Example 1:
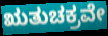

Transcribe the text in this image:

ಋತುಚಕ್ರವೇ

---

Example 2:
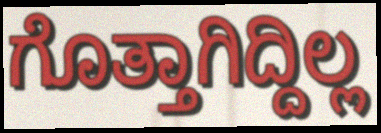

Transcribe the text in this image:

ಗೊತ್ತಾಗಿದ್ದಿಲ್ಲ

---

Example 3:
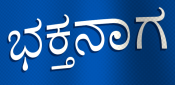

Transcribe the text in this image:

ಭಕ್ತನಾಗ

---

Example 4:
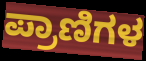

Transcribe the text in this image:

ಪ್ರಾಣಿಗಳ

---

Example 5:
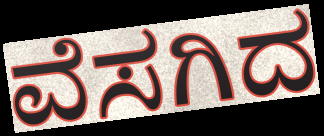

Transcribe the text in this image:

ವೆಸಗಿದ